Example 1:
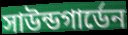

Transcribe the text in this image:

সাউন্ডগার্ডেন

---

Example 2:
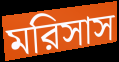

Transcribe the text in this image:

মরিসাস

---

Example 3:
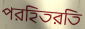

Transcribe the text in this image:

পরহিতরতি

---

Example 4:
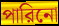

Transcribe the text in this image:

পারিনো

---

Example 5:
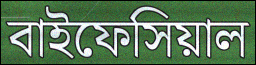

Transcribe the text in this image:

বাইফেসিয়াল